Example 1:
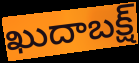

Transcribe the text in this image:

ఖుదాబక్ష్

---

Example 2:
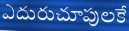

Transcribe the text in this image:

ఎదురుచూపులకే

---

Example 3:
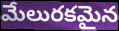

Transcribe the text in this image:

మేలురకమైన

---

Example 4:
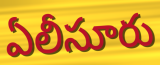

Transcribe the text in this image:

ఏలీసూరు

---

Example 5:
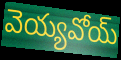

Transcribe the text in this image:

వెయ్యవోయ్